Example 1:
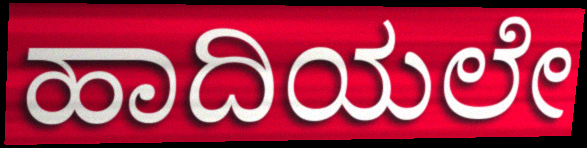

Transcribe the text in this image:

ಹಾದಿಯಲೇ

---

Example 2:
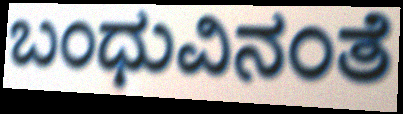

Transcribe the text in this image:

ಬಂಧುವಿನಂತೆ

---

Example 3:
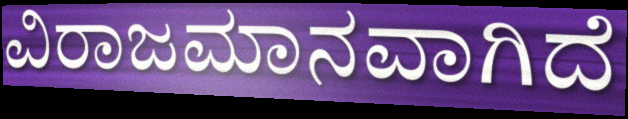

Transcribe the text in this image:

ವಿರಾಜಮಾನವಾಗಿದೆ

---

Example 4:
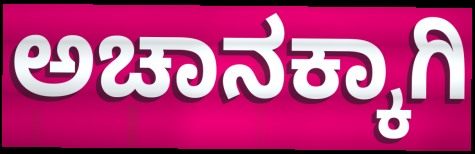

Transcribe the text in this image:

ಅಚಾನಕ್ಕಾಗಿ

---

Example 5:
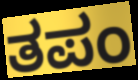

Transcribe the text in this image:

ತಪಂ